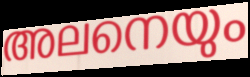
അലനെയും